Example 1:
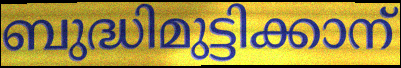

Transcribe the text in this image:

ബുദ്ധിമുട്ടിക്കാന്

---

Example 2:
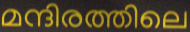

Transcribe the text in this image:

മന്ദിരത്തിലെ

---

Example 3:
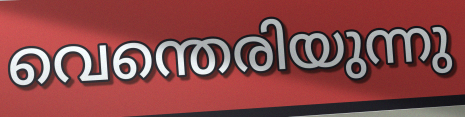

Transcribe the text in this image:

വെന്തെരിയുന്നു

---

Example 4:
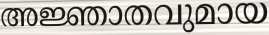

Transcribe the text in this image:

അജ്ഞാതവുമായ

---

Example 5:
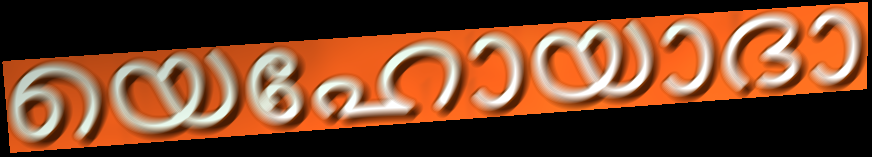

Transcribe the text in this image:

യെഹോയാദാ